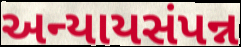
અન્યાયસંપન્ન